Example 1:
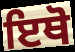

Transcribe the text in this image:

ਇਥੋ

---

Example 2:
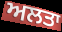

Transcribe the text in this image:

ਅਲਤਾ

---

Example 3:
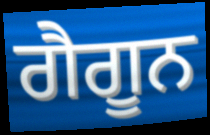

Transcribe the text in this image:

ਗੈਗੂਨ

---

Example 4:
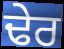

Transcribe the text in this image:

ਢੇਰ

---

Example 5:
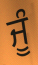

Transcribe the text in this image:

ਜੂੰ